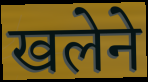
खलेने